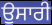
ਉਸਾਰੀ